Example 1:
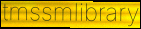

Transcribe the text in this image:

tmssmlibrary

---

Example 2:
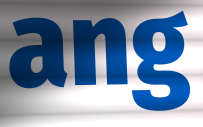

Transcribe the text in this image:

ang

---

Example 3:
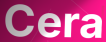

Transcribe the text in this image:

Cera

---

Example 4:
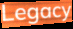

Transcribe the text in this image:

Legacy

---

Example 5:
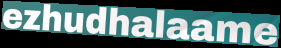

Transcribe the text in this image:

ezhudhalaame